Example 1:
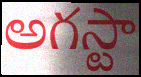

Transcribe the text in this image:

అగస్టా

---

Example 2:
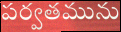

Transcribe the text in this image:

పర్వతమును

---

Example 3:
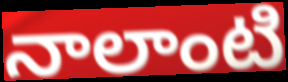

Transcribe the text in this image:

నాలాంటి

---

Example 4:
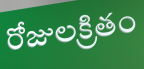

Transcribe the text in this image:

రోజులక్రితం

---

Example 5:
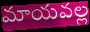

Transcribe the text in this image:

మాయవల్ల